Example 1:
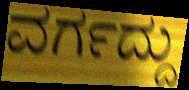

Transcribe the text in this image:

ವರ್ಗದ್ದು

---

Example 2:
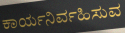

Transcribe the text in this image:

ಕಾರ್ಯನಿರ್ವಹಿಸುವ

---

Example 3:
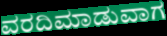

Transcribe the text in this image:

ವರದಿಮಾಡುವಾಗ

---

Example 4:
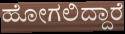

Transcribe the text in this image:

ಹೋಗಲಿದ್ದಾರೆ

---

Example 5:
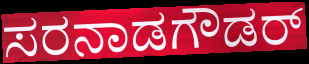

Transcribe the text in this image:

ಸರನಾಡಗೌಡರ್